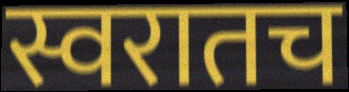
स्वरातच